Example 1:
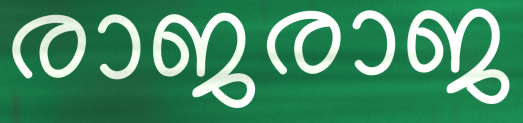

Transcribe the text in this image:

രാജരാജ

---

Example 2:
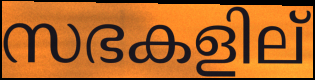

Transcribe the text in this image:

സഭകളില്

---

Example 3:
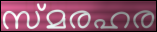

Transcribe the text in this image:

സ്മരഹര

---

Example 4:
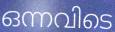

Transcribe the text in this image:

ഒന്നവിടെ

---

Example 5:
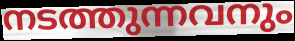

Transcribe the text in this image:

നടത്തുന്നവനും